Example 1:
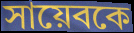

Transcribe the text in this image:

সায়েবকে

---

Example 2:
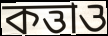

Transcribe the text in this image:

কত্তাও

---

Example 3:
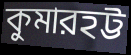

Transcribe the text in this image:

কুমারহট্ট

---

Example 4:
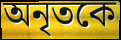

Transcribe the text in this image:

অনৃতকে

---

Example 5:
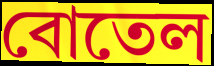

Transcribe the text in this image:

বোতেল